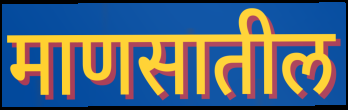
माणसातील